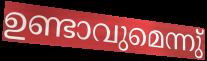
ഉണ്ടാവുമെന്നു്